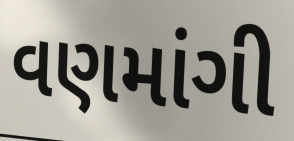
વણમાંગી